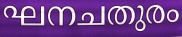
ഘനചതുരം